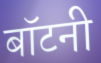
बॉटनी